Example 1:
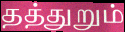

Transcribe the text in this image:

தத்துறும்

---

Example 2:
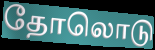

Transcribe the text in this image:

தோலொடு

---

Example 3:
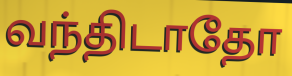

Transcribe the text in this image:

வந்திடாதோ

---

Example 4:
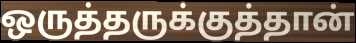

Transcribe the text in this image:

ஒருத்தருக்குத்தான்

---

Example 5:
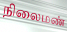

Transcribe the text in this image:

நிலைமண்